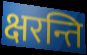
क्षरन्ति